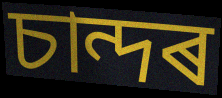
চান্দৰ